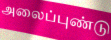
அலைப்புண்டு